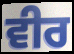
ਵੀਰ